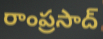
రాంప్రసాద్